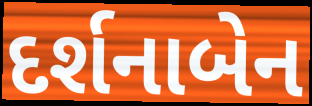
દર્શનાબેન